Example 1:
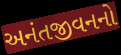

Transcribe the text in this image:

અનંતજીવનનો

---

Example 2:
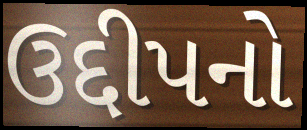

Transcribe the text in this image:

ઉદ્દીપનો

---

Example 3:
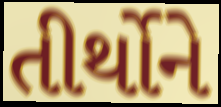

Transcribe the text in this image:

તીર્થોને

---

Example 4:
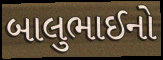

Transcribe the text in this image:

બાલુભાઈનો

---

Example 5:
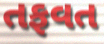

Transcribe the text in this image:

તફવત